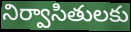
నిర్వాసితులకు